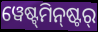
ୱେଷ୍ଟ୍‌ମିନ୍‌ଷ୍ଟର୍